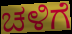
ಚಳಿಗೆ